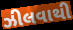
ઝીલવાથી